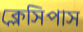
ক্লেসিপাস